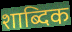
शाब्दिक